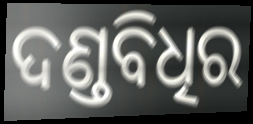
ଦଣ୍ଡବିଧିର